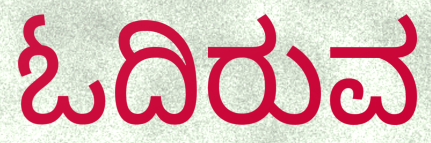
ಓದಿರುವ